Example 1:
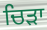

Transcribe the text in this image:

ਚਿੜਾ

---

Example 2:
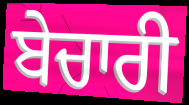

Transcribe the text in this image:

ਬੇਚਾਰੀ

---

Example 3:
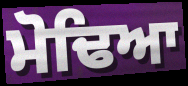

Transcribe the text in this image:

ਮੋਢਿਆ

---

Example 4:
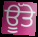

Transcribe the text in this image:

ਊੱਤੇ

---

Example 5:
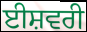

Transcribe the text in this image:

ਈਸ਼ਵਰੀ